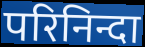
परिनिन्दा